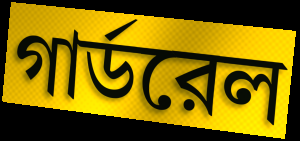
গার্ডরেল